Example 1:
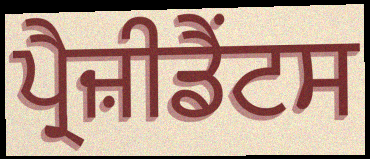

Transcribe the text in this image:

ਪ੍ਰੈਜ਼ੀਡੈਂਟਸ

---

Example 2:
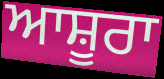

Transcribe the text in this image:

ਆਸ਼ੂਰਾ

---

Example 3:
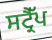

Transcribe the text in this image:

ਸਟ੍ਰੈੱਪ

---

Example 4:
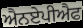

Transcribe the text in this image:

ਐਨਏਪੀਐਫ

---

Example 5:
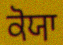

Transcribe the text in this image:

ਕੋਯਾ